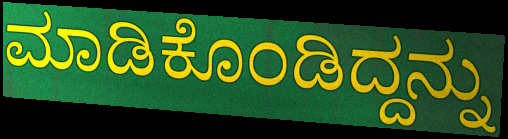
ಮಾಡಿಕೊಂಡಿದ್ದನ್ನು